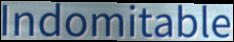
Indomitable